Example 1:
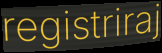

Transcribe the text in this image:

registriraj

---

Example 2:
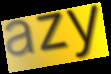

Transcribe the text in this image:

azy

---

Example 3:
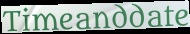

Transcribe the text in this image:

Timeanddate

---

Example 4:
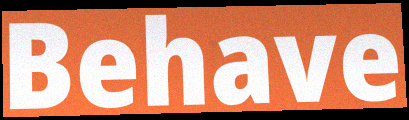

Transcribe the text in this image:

Behave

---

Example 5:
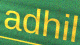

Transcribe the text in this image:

adhil